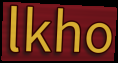
lkho